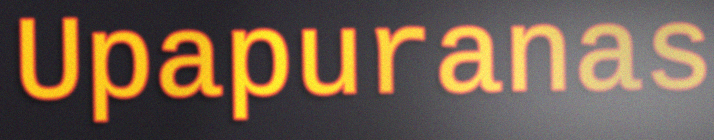
Upapuranas